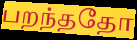
பறந்ததோ